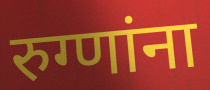
रुग्णांना